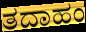
ತದಾಹಂ